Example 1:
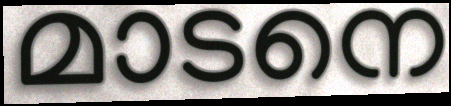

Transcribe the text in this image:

മാടനെ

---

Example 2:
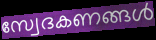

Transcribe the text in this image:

സ്വേദകണങ്ങൾ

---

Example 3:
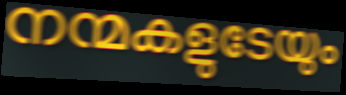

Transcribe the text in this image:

നന്മകളുടേയും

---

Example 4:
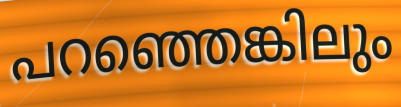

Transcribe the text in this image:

പറഞ്ഞെങ്കിലും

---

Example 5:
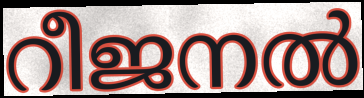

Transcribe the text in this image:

റീജനൽ